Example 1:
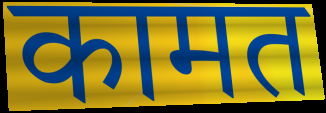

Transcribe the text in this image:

कामत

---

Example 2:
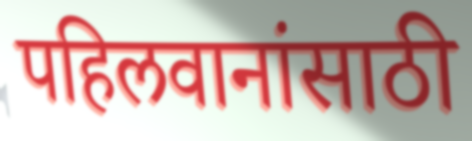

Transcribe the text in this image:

पहिलवानांसाठी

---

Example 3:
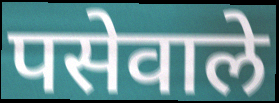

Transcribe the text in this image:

पसेवाले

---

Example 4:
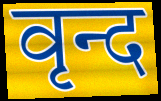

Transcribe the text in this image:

वृन्द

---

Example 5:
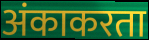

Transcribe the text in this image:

अंकाकरता